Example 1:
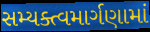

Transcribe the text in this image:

સમ્યક્ત્વમાર્ગણામાં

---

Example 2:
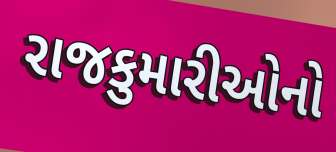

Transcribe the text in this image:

રાજકુમારીઓનો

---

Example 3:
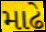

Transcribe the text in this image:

માઢે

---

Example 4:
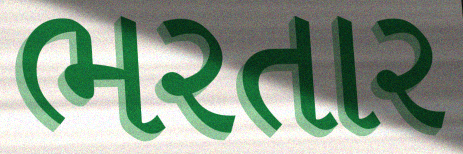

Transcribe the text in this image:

ભરતાર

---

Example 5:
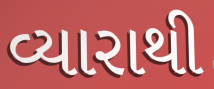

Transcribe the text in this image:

વ્યારાથી